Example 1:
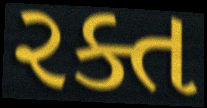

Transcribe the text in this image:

રક્ત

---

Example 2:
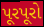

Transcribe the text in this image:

પૂરપૂરો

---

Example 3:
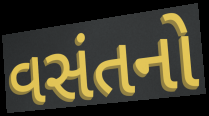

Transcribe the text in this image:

વસંતનો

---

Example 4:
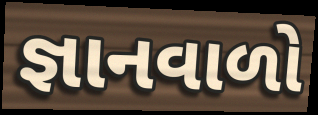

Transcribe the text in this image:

જ્ઞાનવાળો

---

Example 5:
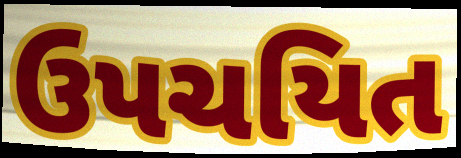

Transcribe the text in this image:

ઉપચયિત